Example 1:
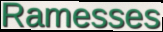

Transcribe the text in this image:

Ramesses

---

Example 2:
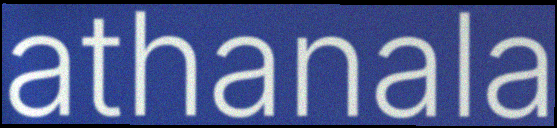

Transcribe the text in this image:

athanala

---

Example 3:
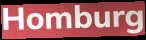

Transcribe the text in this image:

Homburg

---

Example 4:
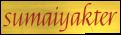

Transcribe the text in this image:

sumaiyakter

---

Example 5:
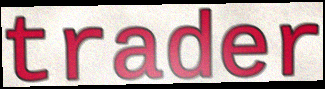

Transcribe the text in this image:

trader